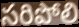
సరిపోలి